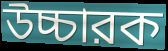
উচ্চারক